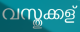
വസ്തുക്കള്